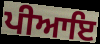
ਪੀਆਇ